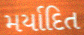
મર્યાદિત